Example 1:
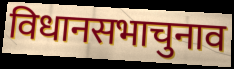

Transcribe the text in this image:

विधानसभाचुनाव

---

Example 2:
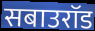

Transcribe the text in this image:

सबाउरॉड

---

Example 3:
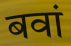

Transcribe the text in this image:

बवां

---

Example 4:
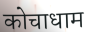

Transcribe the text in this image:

कोचाधाम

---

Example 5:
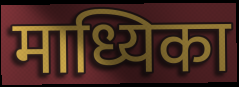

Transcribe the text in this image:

माध्यिका